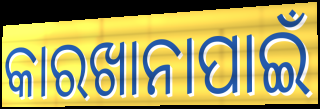
କାରଖାନାପାଇଁ